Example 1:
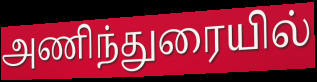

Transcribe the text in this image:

அணிந்துரையில்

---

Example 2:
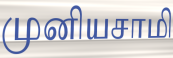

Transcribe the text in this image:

முனியசாமி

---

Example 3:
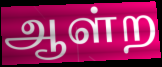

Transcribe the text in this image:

ஆள்ற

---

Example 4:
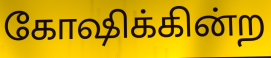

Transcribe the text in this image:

கோஷிக்கின்ற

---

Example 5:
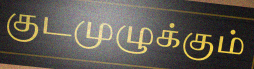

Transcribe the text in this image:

குடமுழுக்கும்